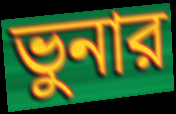
ভুনার